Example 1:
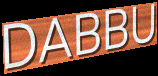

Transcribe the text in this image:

DABBU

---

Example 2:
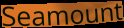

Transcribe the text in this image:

Seamount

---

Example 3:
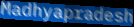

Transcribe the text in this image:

Madhyapradesh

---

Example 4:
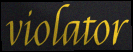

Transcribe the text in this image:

violator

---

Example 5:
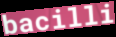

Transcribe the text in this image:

bacilli